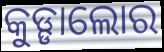
କୁଡ୍ଡାଲୋର